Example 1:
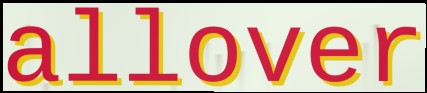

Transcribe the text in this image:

allover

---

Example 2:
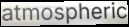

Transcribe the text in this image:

atmospheric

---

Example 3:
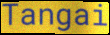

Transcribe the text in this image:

Tangai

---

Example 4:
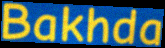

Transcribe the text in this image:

Bakhda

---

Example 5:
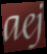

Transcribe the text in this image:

aej